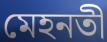
মেহনতী